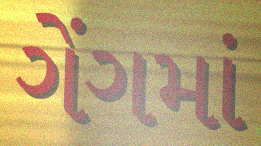
ગેંગમાં